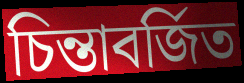
চিন্তাবর্জিত